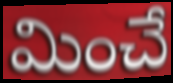
మించే